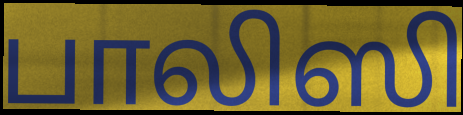
பாலிஸி